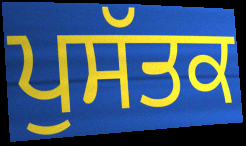
ਪੁਸੱਤਕ